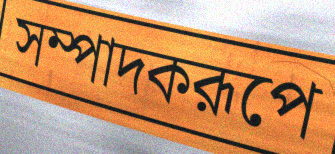
সম্পাদকরূপে